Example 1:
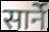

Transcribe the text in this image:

सार्ने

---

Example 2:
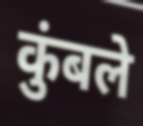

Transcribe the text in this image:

कुंबले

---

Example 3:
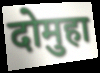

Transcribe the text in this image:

दोमुहा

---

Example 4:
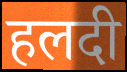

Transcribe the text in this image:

हलदी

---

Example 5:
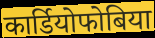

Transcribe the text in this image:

कार्डियोफोबिया